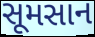
સૂમસાન